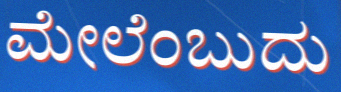
ಮೇಲೆಂಬುದು